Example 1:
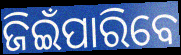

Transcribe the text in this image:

ଜିଇଁପାରିବେ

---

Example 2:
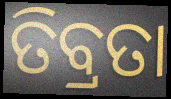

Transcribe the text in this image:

ତିବ୍ରତା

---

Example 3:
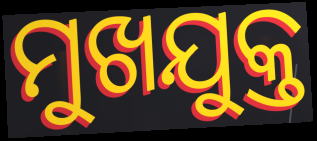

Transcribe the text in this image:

ମୁଖଯୁକ୍ତ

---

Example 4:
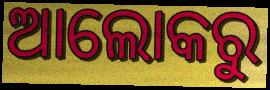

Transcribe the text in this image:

ଆଲୋକରୁ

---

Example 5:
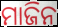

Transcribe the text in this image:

ମାଜିନ